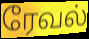
ரேவல்